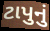
ટાપુનું